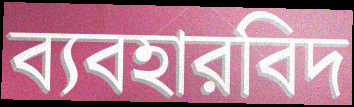
ব্যবহারবিদ